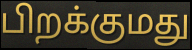
பிறக்குமது